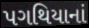
પગથિયાનાં